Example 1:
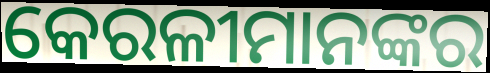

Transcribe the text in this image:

କେରଳୀମାନଙ୍କର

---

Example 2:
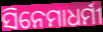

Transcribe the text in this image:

ସିନେମାଧର୍ମୀ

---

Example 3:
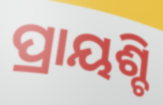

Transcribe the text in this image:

ପ୍ରାୟଶ୍ଚି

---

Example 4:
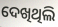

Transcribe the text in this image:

ଦେଖିଥିଲି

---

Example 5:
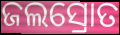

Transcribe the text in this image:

ଜଲସ୍ରୋତ